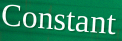
Constant